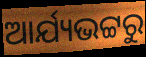
ଆର୍ଯ୍ୟଭଟ୍ଟରୁ